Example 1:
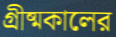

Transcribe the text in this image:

গ্রীষ্মকালের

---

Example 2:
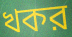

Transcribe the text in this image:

খকর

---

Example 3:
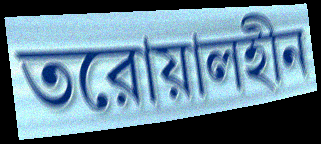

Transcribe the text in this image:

তরোয়ালহীন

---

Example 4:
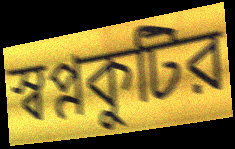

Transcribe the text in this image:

স্বপ্নকুটির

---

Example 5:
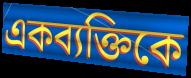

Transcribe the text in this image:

একব্যক্তিকে